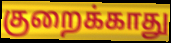
குறைக்காது